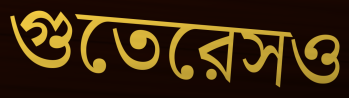
গুতেরেসও